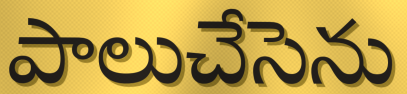
పాలుచేసెను